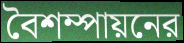
বৈশম্পায়নের